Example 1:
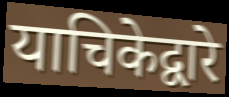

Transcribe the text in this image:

याचिकेद्वारे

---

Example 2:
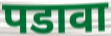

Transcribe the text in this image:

पडावा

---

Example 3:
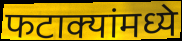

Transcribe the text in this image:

फटाक्यांमध्ये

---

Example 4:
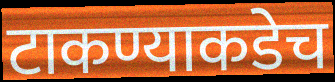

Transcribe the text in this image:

टाकण्याकडेच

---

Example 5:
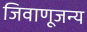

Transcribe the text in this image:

जिवाणूजन्य